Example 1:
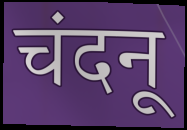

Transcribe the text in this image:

चंदनू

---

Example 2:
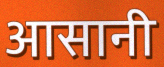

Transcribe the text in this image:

आसानी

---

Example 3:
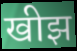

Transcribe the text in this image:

खीझ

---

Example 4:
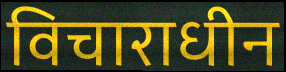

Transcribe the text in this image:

विचाराधीन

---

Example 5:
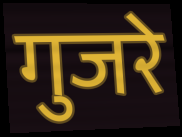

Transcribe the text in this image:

गुजरे